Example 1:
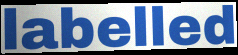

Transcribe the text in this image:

labelled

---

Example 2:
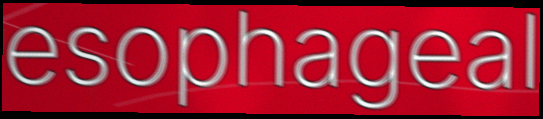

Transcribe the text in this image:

esophageal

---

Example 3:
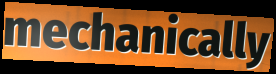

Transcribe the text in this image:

mechanically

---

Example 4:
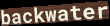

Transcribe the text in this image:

backwater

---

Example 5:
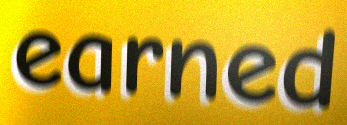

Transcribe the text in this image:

earned